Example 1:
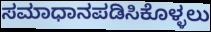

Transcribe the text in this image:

ಸಮಾಧಾನಪಡಿಸಿಕೊಳ್ಳಲು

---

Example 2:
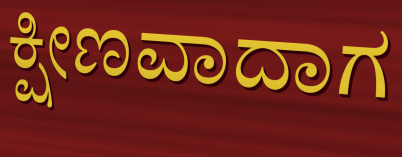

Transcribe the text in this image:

ಕ್ಷೀಣವಾದಾಗ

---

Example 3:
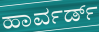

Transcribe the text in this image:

ಹಾರ್ವರ್ಡ್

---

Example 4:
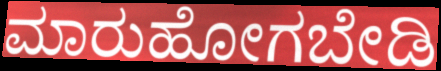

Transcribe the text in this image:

ಮಾರುಹೋಗಬೇಡಿ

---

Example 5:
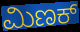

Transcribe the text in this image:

ಮಿಣಕ್